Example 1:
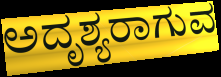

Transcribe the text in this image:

ಅದೃಶ್ಯರಾಗುವ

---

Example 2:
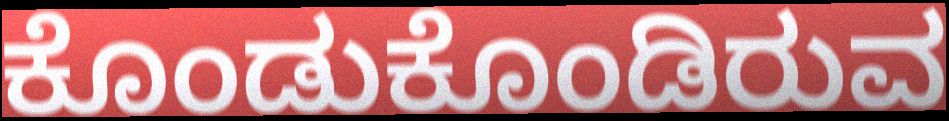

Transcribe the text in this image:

ಕೊಂಡುಕೊಂಡಿರುವ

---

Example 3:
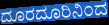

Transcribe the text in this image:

ದೂರದೂರಿನಿಂದ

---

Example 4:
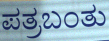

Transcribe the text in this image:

ಪತ್ರಬಂತು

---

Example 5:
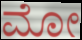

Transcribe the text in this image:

ಮೋ